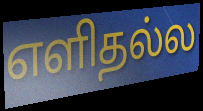
எளிதல்ல